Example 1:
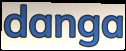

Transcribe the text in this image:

danga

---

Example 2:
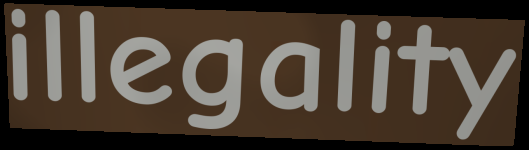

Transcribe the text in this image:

illegality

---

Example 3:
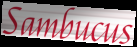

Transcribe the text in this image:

Sambucus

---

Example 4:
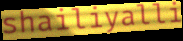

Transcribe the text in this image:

shailiyalli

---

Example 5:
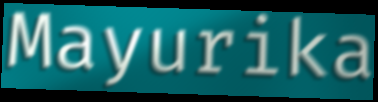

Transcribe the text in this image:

Mayurika